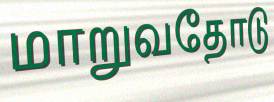
மாறுவதோடு